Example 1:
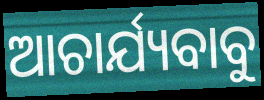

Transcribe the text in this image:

ଆଚାର୍ଯ୍ୟବାବୁ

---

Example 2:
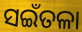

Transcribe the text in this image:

ସଇଁତଳା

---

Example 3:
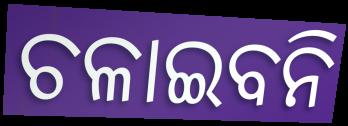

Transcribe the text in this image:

ଚଳାଇବନି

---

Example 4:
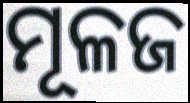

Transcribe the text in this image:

ମୂଳଜ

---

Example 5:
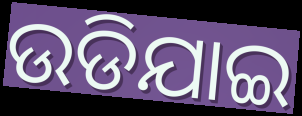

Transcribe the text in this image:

ଉଡିଯାଇ